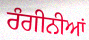
ਰੰਗੀਨੀਆਂ